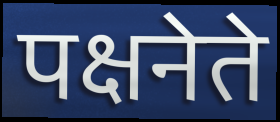
पक्षनेते